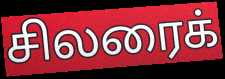
சிலரைக்